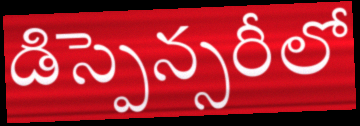
డిస్పెన్సరీలో